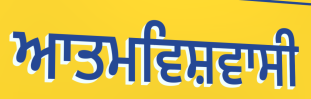
ਆਤਮਵਿਸ਼ਵਾਸੀ